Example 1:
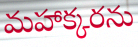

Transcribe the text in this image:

మహాక్కరను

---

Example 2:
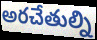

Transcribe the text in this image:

అరచేతుల్ని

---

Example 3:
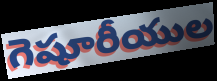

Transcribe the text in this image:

గెషూరీయుల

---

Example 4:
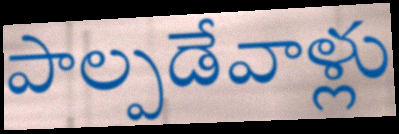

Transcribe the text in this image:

పాల్పడేవాళ్లు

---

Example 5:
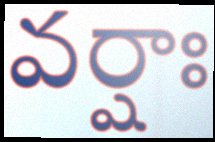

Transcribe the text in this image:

వర్షాః